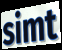
simt